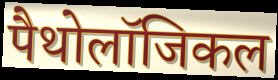
पैथोलॉजिकल